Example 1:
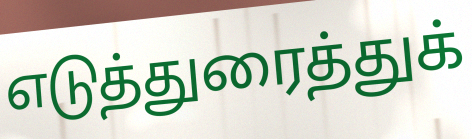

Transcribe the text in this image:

எடுத்துரைத்துக்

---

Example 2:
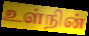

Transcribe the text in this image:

உள்நின்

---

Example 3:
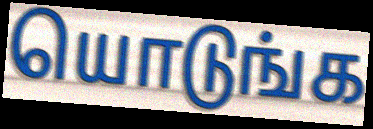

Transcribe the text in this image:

யொடுங்க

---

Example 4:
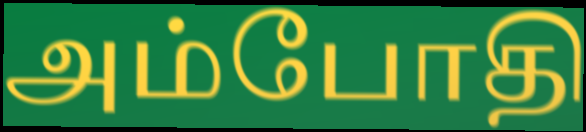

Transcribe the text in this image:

அம்போதி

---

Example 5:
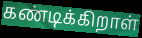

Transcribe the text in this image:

கண்டிக்கிறாள்